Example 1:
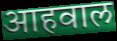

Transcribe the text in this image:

आहवाल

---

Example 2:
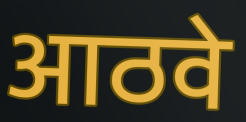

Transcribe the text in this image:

आठवे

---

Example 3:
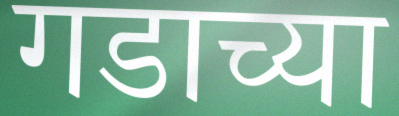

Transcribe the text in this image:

गडाच्या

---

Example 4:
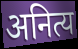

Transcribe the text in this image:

अनित्य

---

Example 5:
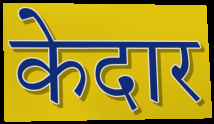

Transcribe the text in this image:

केदार